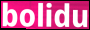
bolidu